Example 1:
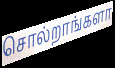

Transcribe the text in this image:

சொல்றாங்களா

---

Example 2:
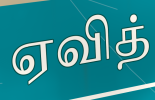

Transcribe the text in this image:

ஏவித்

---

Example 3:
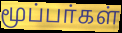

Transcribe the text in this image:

மூப்பர்கள்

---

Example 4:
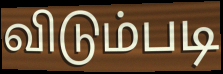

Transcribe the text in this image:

விடும்படி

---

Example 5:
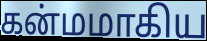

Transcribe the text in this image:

கன்மமாகிய